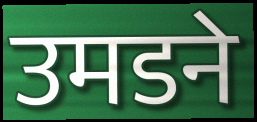
उमडने